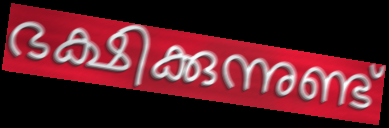
ഭക്ഷിക്കുന്നുണ്ട്